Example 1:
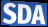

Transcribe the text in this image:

SDA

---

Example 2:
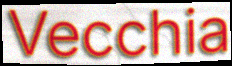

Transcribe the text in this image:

Vecchia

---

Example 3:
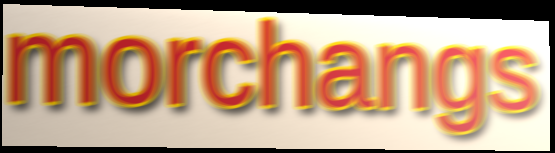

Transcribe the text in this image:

morchangs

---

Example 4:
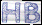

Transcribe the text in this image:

HB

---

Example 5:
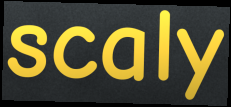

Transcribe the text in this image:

scaly